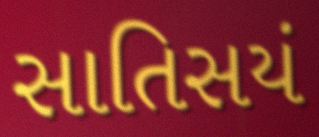
સાતિસયં